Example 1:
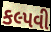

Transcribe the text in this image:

કલ્પવી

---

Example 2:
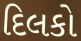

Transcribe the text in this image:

દિલકો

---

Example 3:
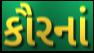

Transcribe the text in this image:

કૌરનાં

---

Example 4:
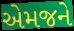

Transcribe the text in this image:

એમજને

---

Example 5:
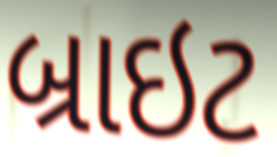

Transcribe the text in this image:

બ્રાઇટ